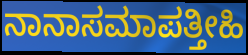
ನಾನಾಸಮಾಪತ್ತೀಹಿ